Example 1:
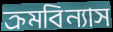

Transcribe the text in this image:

ক্ৰমবিন্যাস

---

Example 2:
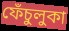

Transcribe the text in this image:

ফেঁচুলুকা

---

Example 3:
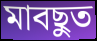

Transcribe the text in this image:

মাবছুত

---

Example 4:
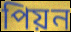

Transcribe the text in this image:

পিয়ন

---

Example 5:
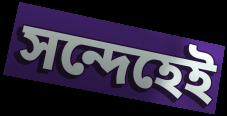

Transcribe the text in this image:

সন্দেহেই